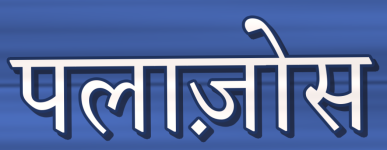
पलाज़ोस